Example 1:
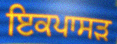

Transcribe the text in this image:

ਇਕਪਾਸੜ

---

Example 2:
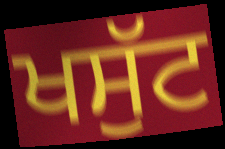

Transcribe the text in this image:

ਖਸੁੱਟ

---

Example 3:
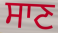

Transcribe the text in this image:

ਸਾਣ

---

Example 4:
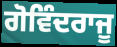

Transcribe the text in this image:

ਗੋਵਿੰਦਰਾਜੂ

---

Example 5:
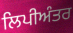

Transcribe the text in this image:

ਲਿਪੀਅੰਤਰ